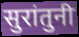
सुरांतुनी